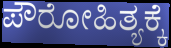
ಪೌರೋಹಿತ್ಯಕ್ಕೆ